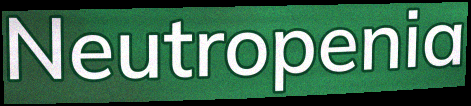
Neutropenia